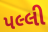
પલ્લી